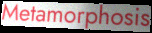
Metamorphosis